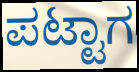
ಪಟ್ಟಾಗ